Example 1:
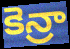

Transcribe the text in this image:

కెన్రా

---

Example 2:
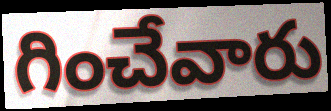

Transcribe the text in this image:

గించేవారు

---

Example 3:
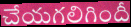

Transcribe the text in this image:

చేయగలిగిందీ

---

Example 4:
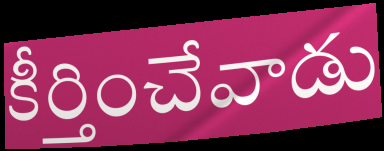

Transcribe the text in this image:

కీర్తించేవాడు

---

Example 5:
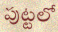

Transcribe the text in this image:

పుట్టలో